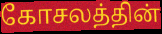
கோசலத்தின்